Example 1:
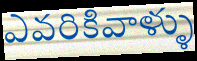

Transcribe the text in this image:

ఎవరికివాళ్ళు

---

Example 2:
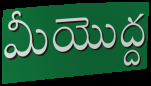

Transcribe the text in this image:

మీయొద్ద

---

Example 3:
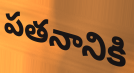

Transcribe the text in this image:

పతనానికి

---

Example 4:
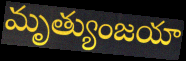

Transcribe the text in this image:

మృత్యుంజయా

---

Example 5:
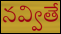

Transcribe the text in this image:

నవ్వితే